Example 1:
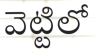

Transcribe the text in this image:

వెట్టిలో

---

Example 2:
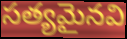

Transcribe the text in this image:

సత్యమైనవి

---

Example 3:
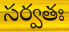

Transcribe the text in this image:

సర్వతః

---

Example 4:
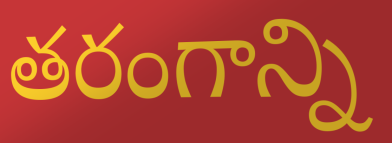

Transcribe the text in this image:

తరంగాన్ని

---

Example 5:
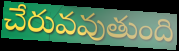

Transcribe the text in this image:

చేరువవుతుంది